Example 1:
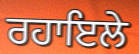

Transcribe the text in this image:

ਰਹਾਇਲੇ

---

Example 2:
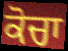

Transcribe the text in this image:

ਕੋਚਾ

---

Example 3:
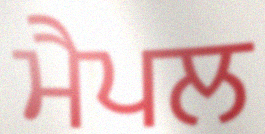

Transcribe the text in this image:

ਮੈਪਲ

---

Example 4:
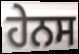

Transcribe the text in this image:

ਹੇਨਸ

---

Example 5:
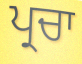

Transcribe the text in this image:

ਪ੍ਰਚਾ